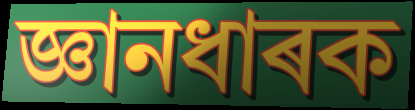
জ্ঞানধাৰক